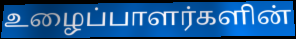
உழைப்பாளர்களின்